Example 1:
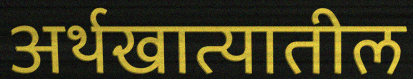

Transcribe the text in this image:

अर्थखात्यातील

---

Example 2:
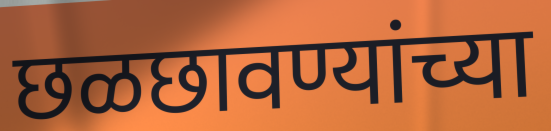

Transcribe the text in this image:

छळछावण्यांच्या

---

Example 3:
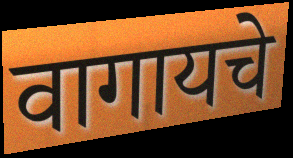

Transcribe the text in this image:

वागायचे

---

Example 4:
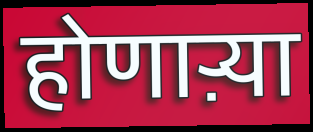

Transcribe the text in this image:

होणाऱ्‍या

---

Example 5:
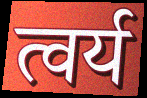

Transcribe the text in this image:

त्वर्य